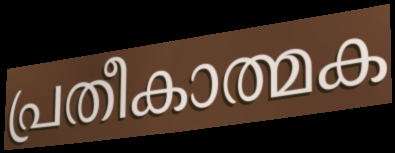
പ്രതീകാത്മക